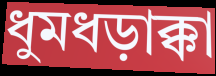
ধুমধড়াক্কা